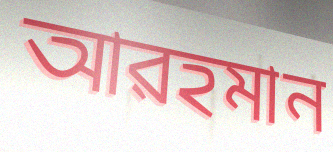
আৱহমান